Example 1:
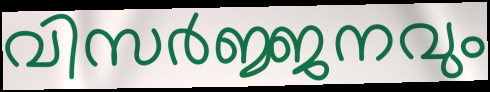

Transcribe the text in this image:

വിസർജ്ജനവും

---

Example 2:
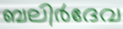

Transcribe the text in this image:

ബലിർദേവ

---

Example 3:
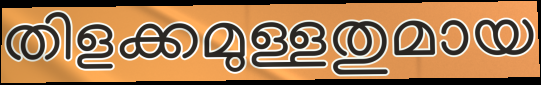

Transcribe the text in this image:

തിളക്കമുള്ളതുമായ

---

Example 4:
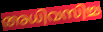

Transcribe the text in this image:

അധിവസിച്ച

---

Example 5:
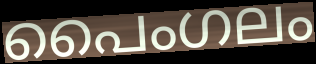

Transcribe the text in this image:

പൈംഗലം